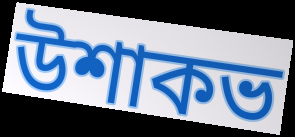
উশাকভ